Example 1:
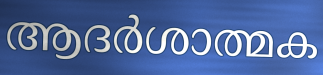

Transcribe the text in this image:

ആദർശാത്മക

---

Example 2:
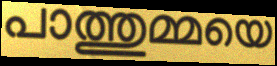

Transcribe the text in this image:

പാത്തുമ്മയെ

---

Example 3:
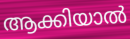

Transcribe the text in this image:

ആക്കിയാൽ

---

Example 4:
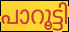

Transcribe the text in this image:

പാറൂട്ടി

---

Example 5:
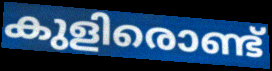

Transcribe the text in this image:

കുളിരൊണ്ട്